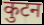
कुटन